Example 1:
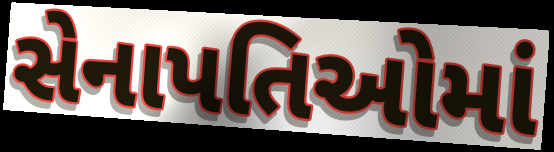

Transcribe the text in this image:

સેનાપતિઓમાં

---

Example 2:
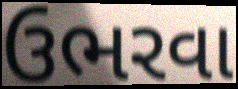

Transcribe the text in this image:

ઉભરવા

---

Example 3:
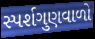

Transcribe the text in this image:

સ્પર્શગુણવાળો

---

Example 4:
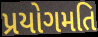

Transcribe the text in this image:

પ્રયોગમતિ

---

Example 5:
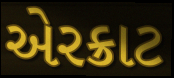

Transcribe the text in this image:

એરક્રાટ